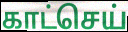
காட்செய்